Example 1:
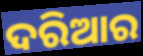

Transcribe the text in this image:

ଦରିଆର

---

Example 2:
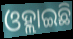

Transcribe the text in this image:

ଓହ୍ଲାଇଛି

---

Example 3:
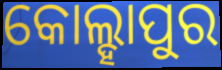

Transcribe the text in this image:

କୋଲ୍ହାପୁର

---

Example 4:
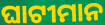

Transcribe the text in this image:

ଘାଟୀମାନ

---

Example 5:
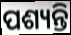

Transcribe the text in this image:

ପଶ୍ୟନ୍ତି